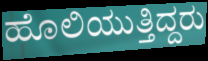
ಹೊಲಿಯುತ್ತಿದ್ದರು